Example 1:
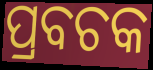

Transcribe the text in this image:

ପ୍ରବଚକ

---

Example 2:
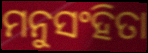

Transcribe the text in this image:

ମନୁସଂହିତା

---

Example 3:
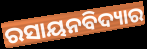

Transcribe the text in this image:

ରସାୟନବିଦ୍ୟାର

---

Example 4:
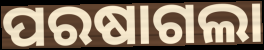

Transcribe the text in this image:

ପରଷାଗଲା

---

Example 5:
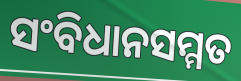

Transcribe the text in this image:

ସଂବିଧାନସମ୍ମତ